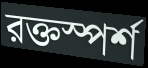
রক্তস্পর্শ